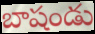
బాషండు